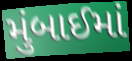
મુંબાઈમાં